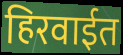
हिरवाईत